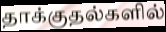
தாக்குதல்களில்